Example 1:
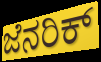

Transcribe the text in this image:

ಜೆನರಿಕ್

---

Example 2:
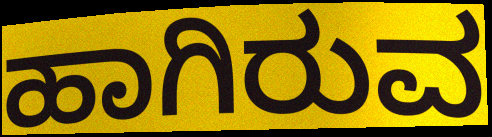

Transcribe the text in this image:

ಹಾಗಿರುವ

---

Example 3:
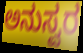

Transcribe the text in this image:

ಅನುಸ್ವರ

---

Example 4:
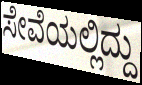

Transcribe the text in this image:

ಸೇವೆಯಲ್ಲಿದ್ದು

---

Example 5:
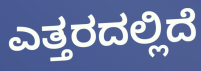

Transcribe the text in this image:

ಎತ್ತರದಲ್ಲಿದೆ